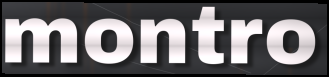
montro